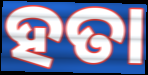
ହତା